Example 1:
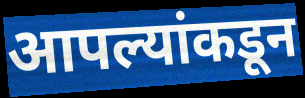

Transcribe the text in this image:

आपल्यांकडून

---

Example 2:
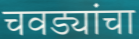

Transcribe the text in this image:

चवड्यांचा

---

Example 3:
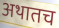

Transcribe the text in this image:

अथातच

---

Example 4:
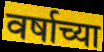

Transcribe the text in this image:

वर्षाच्या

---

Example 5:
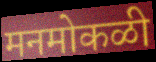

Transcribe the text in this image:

मनमोकळी